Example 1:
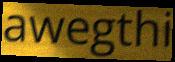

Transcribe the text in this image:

awegthi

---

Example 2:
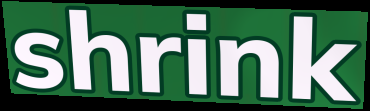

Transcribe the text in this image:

shrink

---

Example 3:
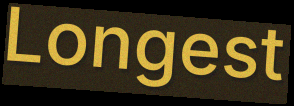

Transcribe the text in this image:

Longest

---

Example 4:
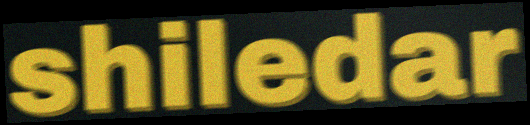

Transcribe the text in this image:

shiledar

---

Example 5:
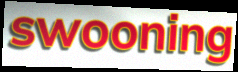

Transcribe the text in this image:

swooning